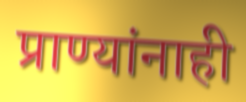
प्राण्यांनाही